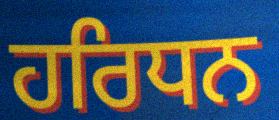
ਹਰਿਧਨ